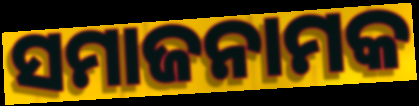
ସମାଜନାମକ